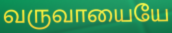
வருவாயையே